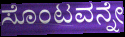
ಸೊಂಟವನ್ನೇ